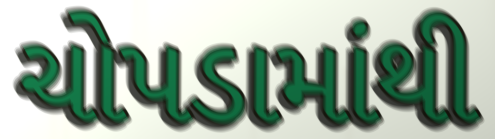
ચોપડામાંથી